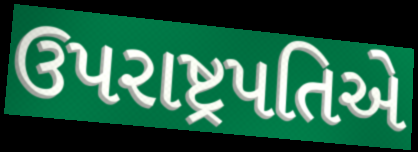
ઉપરાષ્ટ્રપતિએ